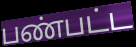
பண்பட்ட